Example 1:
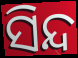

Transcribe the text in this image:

ସିନ୍ଦ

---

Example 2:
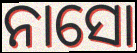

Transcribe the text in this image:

ନାସୋ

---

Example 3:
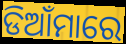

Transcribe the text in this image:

ଡିଆଁମାରେ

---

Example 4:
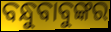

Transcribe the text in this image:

ବନ୍ଧୁବାବୁଙ୍କର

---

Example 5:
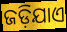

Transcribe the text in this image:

ଜଡ଼ିଯାଏ